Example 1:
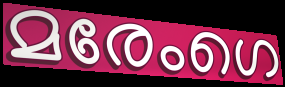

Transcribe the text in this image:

മരേംഗെ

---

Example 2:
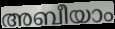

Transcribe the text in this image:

അബീയാം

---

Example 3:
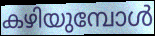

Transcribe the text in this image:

കഴിയുമ്പോൾ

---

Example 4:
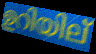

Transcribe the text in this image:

ഉറിയില്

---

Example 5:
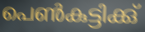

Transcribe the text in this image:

പെൺകുട്ടിക്കു്